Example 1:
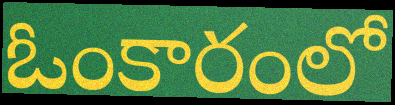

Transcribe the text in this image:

ఓంకారంలో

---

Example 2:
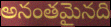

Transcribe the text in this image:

అనంతమైనది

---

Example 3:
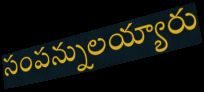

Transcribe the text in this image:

సంపన్నులయ్యారు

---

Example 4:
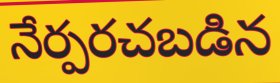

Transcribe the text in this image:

నేర్పరచబడిన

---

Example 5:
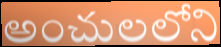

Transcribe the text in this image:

అంచులలోని